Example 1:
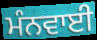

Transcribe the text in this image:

ਮੰਨਵਾਈ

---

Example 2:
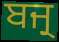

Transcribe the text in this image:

ਬਜ੍ਰ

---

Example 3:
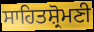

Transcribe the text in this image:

ਸਾਹਿਤਸ਼੍ਰੋਮਣੀ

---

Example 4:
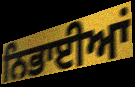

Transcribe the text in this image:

ਨਿਭਾਈਆਂ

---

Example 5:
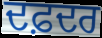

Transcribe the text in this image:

ਦਫ਼ਦਰ